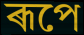
ৰূপে